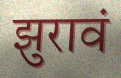
झुरावं